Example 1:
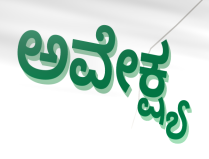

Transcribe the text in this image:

ಅವೇಕ್ಷ್ಯ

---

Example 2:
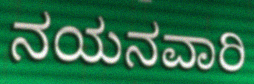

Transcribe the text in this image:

ನಯನವಾರಿ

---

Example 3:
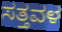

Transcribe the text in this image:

ಸತ್ತವಳ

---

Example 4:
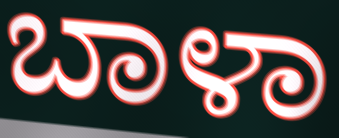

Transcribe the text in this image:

ಬಾಳಾ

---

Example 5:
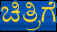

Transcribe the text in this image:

ಚಿತ್ರಿಗೆ